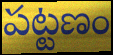
పట్టణం